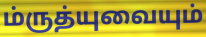
ம்ருத்யுவையும்